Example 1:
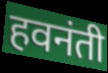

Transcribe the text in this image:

हवनंती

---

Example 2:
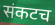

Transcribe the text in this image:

संकटच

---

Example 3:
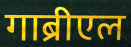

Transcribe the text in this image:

गाब्रीएल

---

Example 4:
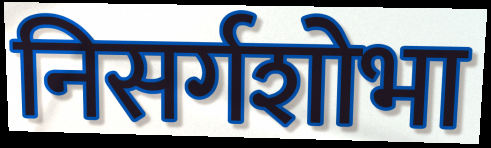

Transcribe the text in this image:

निसर्गशोभा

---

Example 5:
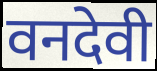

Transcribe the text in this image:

वनदेवी